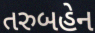
તરુબહેન